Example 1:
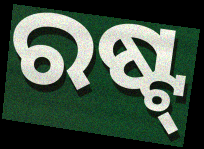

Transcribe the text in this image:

ରଷ୍ଟ୍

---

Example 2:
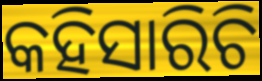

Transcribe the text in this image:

କହିସାରିଚି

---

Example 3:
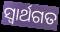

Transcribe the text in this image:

ସ୍ୱାର୍ଥଗତ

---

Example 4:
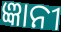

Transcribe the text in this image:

ଜ୍ଞାନୀ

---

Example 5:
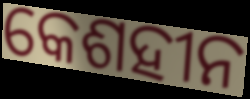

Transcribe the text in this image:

କେଶହୀନ